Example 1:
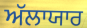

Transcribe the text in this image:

ਅੱਲਾਯਾਰ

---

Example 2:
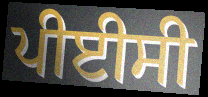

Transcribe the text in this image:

ਪੀਈਸੀ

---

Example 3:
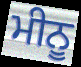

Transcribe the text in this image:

ਮੀਨੂ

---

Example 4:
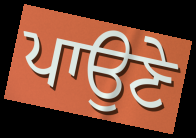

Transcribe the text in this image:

ਪਾਉਣੇ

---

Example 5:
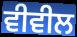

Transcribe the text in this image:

ਵੀਵੀਲ